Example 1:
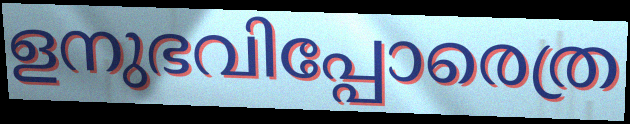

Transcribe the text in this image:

ളനുഭവിപ്പോരെത്ര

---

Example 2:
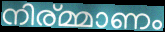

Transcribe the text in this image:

നിര്മ്മാണം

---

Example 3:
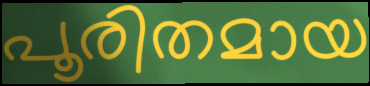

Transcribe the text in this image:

പൂരിതമായ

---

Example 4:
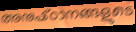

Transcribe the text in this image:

അനുഷ്‌ഠാനങ്ങളുടെ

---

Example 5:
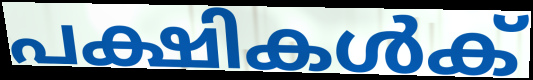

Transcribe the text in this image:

പക്ഷികൾക്